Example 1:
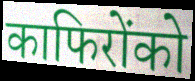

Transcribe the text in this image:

काफिरोंको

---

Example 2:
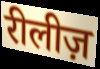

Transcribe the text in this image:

रीलीज़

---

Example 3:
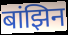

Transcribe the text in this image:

बांझिन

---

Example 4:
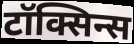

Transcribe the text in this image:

टॉक्सिन्स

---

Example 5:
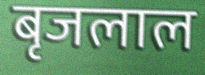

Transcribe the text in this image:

बृजलाल